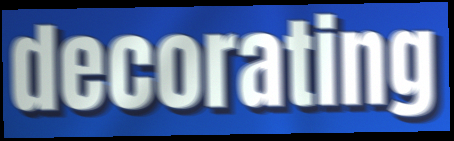
decorating